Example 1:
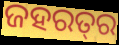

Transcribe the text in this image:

ଜହରତ୍‍ର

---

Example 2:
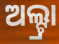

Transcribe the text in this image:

ଅଲ୍ଟ୍ରା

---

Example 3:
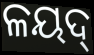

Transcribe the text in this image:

ଳୟଦ୍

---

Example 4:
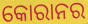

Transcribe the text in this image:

କୋରାନର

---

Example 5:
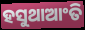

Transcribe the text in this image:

ହସୁଥାଆଂତି